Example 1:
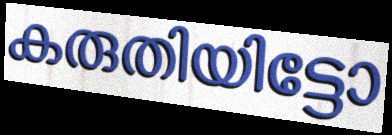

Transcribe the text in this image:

കരുതിയിട്ടോ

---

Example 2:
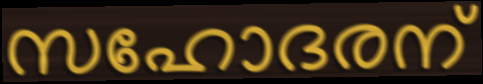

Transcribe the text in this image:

സഹോദരന്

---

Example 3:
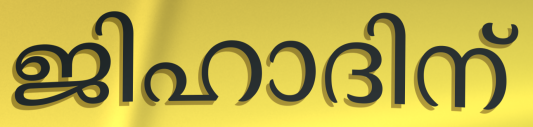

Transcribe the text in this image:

ജിഹാദിന്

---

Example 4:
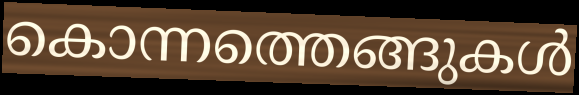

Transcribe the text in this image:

കൊന്നത്തെങ്ങുകൾ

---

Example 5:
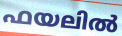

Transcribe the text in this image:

ഫയലിൽ